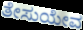
ತೇಸುಯೇವ